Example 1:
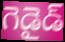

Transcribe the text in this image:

గెడైడ్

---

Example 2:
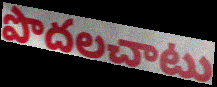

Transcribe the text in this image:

పొదలచాటు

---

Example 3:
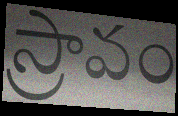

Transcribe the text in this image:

స్రావం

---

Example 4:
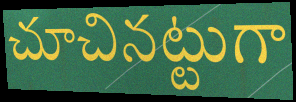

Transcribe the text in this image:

చూచినట్టుగా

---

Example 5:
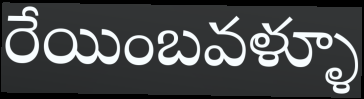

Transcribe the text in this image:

రేయింబవళ్ళూ